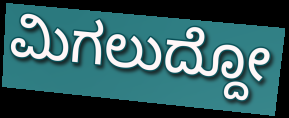
ಮಿಗಲುದ್ದೋ